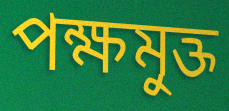
পক্ষমুক্ত